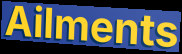
Ailments